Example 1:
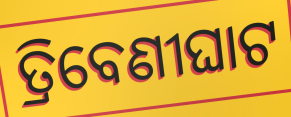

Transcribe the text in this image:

ତ୍ରିବେଣୀଘାଟ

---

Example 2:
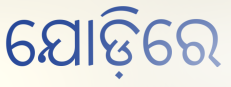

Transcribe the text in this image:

ଯୋଡ଼ିରେ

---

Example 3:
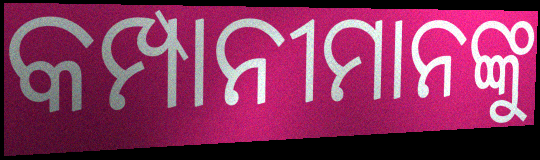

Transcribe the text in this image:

କମ୍ପାନୀମାନଙ୍କୁ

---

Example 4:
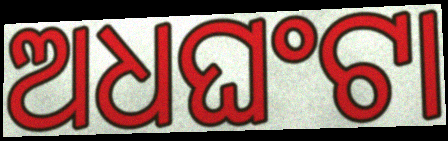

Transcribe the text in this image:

ଅଧଘଂଟା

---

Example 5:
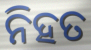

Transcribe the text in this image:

ନିହତ